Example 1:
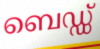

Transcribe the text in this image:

ബെഡ്ഡ്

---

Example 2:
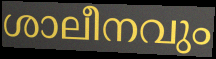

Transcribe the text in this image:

ശാലീനവും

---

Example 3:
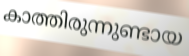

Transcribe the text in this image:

കാത്തിരുന്നുണ്ടായ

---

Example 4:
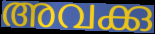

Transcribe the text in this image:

അവക്കു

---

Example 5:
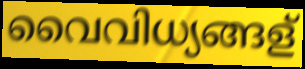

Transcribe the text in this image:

വൈവിധ്യങ്ങള്